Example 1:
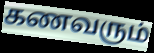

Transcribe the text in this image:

கணவரும்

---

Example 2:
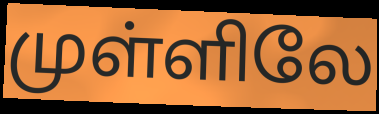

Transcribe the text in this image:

முள்ளிலே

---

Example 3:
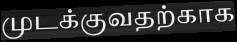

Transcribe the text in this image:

முடக்குவதற்காக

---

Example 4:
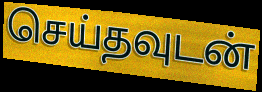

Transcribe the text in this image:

செய்தவுடன்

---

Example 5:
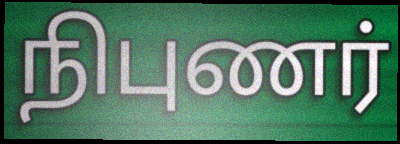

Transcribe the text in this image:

நிபுணர்